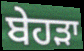
ਬੇਹੜਾ